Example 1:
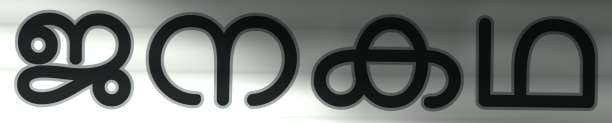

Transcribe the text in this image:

ജനകഥ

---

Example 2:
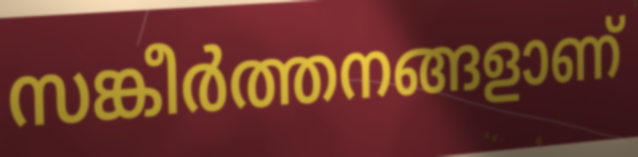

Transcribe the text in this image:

സങ്കീർത്തനങ്ങളാണ്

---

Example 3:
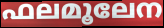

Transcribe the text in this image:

ഫലമൂലേന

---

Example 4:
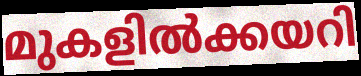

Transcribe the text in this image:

മുകളിൽക്കയറി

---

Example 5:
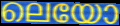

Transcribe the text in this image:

ലെയോ